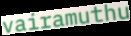
vairamuthu